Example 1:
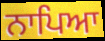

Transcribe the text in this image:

ਨਾਪਿਆ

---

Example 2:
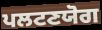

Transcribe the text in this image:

ਪਲਟਣਯੋਗ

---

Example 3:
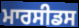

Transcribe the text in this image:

ਮਾਰਸੀਡਸ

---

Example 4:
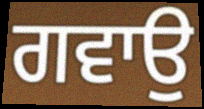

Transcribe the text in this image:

ਗਵਾਉ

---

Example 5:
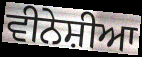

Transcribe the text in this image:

ਵੀਨੇਸ਼ੀਆ